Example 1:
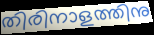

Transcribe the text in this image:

തിരിനാളത്തിനു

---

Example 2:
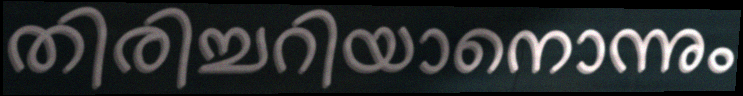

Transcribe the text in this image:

തിരിച്ചറിയാനൊന്നും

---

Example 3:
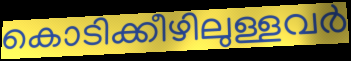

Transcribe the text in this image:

കൊടിക്കീഴിലുള്ളവർ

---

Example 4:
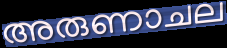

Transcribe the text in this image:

അരുണാചല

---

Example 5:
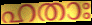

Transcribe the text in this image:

ഹതാഃ